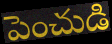
పెంచుడి